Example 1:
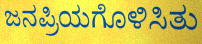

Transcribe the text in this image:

ಜನಪ್ರಿಯಗೊಳಿಸಿತು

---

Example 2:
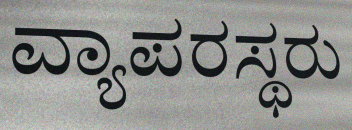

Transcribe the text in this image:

ವ್ಯಾಪರಸ್ಥರು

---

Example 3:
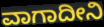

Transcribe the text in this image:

ವಾಗಾದೀನಿ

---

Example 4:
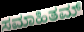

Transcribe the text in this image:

ಸಮಾಹಿತಮ್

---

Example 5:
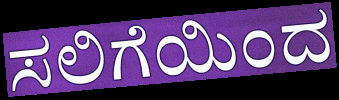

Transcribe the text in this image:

ಸಲಿಗೆಯಿಂದ